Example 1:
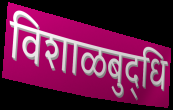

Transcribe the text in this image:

विशाळबुद्धि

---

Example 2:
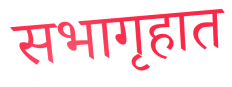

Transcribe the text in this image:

सभागृहात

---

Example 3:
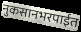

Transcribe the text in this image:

नुकसानभरपाईत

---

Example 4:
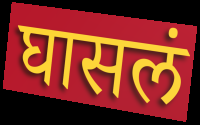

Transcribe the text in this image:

घासलं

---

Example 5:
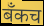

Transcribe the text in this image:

बँकच